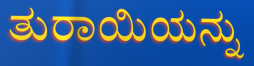
ತುರಾಯಿಯನ್ನು